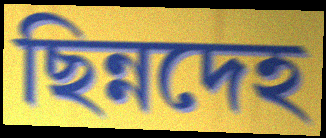
ছিন্নদেহ